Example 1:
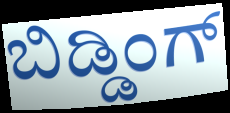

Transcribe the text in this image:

ಬಿಡ್ಡಿಂಗ್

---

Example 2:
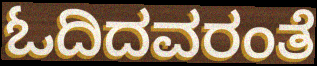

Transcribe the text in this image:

ಓದಿದವರಂತೆ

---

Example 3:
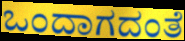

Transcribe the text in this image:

ಒಂದಾಗದಂತೆ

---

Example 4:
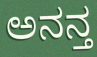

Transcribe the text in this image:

ಅನನ್ತ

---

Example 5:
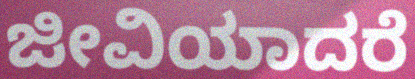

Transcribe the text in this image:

ಜೀವಿಯಾದರೆ